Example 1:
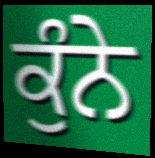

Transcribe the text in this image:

ਕੁੰਨੇ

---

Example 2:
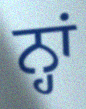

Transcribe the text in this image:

ਨ੍ਹਾਂ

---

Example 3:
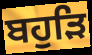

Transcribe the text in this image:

ਬਹੁੜਿ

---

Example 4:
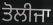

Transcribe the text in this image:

ਤੋਲੀਜਾ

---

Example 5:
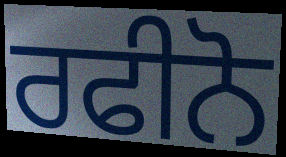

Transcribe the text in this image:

ਰਫੀਨੋ